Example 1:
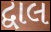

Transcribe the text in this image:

દ્વાલ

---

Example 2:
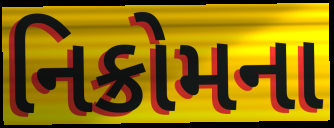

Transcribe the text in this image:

નિક્રોમના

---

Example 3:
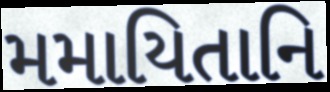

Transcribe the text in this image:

મમાયિતાનિ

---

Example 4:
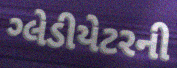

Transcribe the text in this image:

ગ્લેડીયેટરની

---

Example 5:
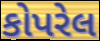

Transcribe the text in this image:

કોપરેલ